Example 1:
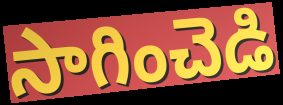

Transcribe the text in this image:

సాగించెడి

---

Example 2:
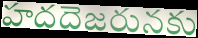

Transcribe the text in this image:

హదదెజరునకు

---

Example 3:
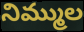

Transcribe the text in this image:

నిమ్ముల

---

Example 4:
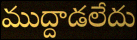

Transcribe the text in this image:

ముద్దాడలేదు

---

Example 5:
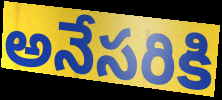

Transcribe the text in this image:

అనేసరికి